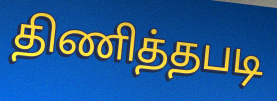
திணித்தபடி